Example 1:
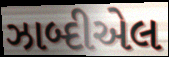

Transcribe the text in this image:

ઝાબ્દીએલ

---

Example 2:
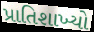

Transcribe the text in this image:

પ્રાતિશાખ્યો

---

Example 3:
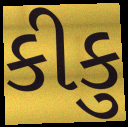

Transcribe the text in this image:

કીકુ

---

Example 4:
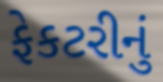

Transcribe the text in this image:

ફેકટરીનું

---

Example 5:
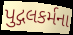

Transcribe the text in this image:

પુદ્ગલકર્મના